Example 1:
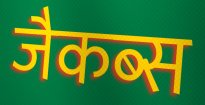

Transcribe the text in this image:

जैकब्स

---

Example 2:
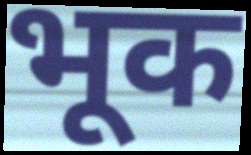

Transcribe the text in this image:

भूक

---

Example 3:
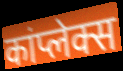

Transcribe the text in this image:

कांप्लेक्स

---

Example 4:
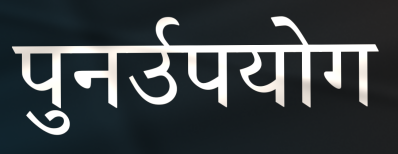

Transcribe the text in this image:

पुनर्उपयोग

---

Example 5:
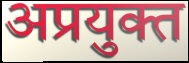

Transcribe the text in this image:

अप्रयुक्त